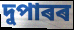
দুপাৰৰ